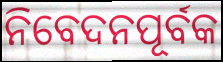
ନିବେଦନପୂର୍ବକ